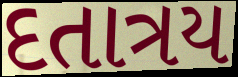
દતાત્રય